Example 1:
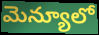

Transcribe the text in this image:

మెన్యూలో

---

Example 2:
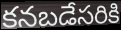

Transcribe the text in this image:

కనబడేసరికి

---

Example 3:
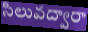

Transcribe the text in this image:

సిలువద్వారా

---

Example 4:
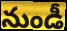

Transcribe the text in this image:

నుండీ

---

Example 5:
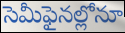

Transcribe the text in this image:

సెమీఫైనల్లోనూ